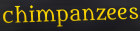
chimpanzees